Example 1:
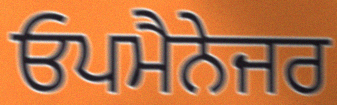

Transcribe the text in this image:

ਓਪਮੈਨੇਜਰ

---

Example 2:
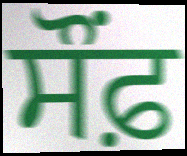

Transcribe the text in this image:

ਸੌਂਫ਼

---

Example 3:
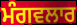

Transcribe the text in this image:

ਮੰਗਵਲਾਰ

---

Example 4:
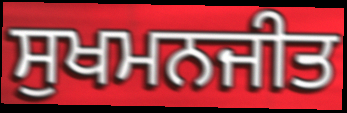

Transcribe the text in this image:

ਸੁਖਮਨਜੀਤ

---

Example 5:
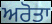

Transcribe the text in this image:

ਅਰੋਤਾ